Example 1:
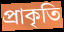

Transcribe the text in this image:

প্ৰাকৃতি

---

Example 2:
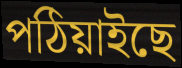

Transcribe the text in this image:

পঠিয়াইছে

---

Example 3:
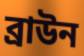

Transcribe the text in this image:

ব্ৰাউন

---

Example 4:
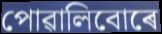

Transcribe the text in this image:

পোৱালিবোৰে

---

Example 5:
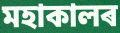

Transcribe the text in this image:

মহাকালৰ